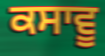
ਕਸਾਵੂ